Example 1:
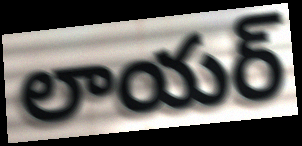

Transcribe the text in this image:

లాయర్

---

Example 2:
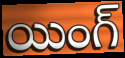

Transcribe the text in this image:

యింగ్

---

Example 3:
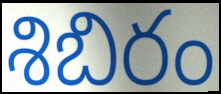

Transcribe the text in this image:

శిబిరం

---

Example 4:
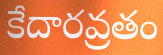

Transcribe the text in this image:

కేదారవ్రతం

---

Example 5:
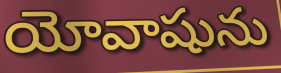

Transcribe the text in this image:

యోవాషును